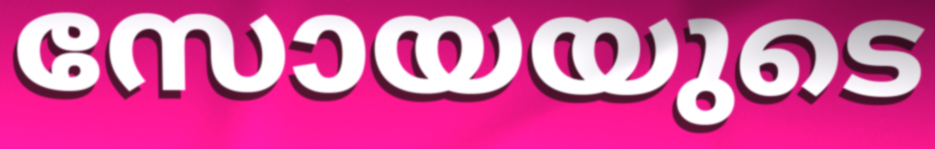
സോയയുടെ